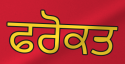
ਫਰੋਕਤ